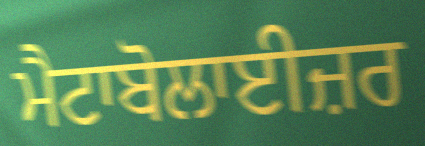
ਮੈਟਾਬੋਲਾਈਜ਼ਰ